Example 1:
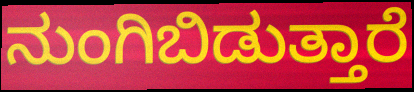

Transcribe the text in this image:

ನುಂಗಿಬಿಡುತ್ತಾರೆ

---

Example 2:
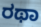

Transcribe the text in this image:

ರಥಾ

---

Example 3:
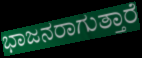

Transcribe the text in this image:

ಭಾಜನರಾಗುತ್ತಾರೆ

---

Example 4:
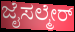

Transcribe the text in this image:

ಜೈಸಲ್ಮೇರ್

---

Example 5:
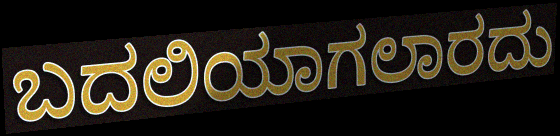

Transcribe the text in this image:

ಬದಲಿಯಾಗಲಾರದು